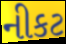
નીકટ